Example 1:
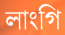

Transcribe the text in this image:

লাংগি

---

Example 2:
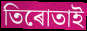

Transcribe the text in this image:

তিৰোতাই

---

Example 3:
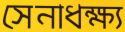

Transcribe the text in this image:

সেনাধক্ষ্য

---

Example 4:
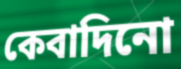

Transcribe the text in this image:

কেবাদিনো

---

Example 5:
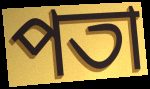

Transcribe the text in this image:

পতা